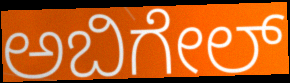
ಅಬಿಗೇಲ್